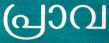
പ്രാവ